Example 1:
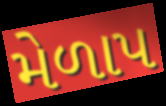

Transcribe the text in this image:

મેળાપ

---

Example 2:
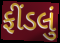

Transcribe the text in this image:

ફીંડલું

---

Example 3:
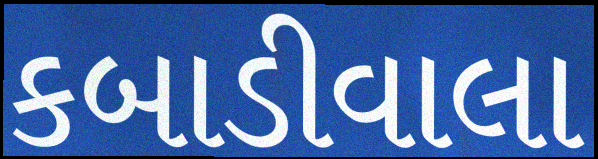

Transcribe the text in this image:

કબાડીવાલા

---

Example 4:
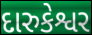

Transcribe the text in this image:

દારુકેશ્વર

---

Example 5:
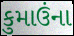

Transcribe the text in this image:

કુમાઉંના